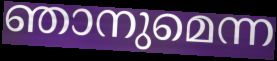
ഞാനുമെന്ന